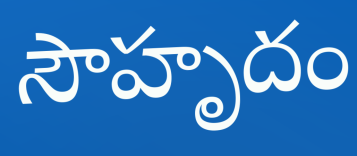
సౌహృదం